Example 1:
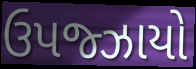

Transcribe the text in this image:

ઉપજ્ઝાયો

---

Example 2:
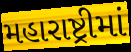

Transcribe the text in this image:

મહારાષ્ટ્રીમાં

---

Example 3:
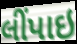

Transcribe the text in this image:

લીંપાઇ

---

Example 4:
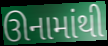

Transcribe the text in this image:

ઊનામાંથી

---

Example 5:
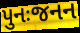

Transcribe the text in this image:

પુનઃજનન